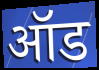
ऑड